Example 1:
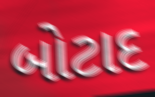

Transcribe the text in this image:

બોટાદ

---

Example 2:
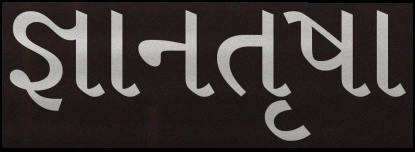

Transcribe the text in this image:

જ્ઞાનતૃષા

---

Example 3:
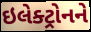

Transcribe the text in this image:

ઇલેક્ટ્રોનને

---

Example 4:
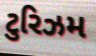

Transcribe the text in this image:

ટુરિઝમ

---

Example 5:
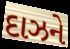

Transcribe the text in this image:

દાઝને